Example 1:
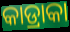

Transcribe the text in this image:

କାଡ୍ରାକା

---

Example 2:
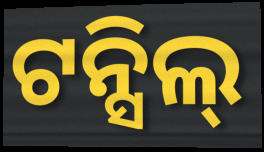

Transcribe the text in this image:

ଟନ୍ସିଲ୍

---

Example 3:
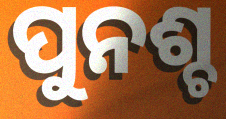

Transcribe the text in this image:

ପୁନଶ୍ଚ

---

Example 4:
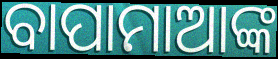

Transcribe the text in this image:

ବାପାମାଆଙ୍କ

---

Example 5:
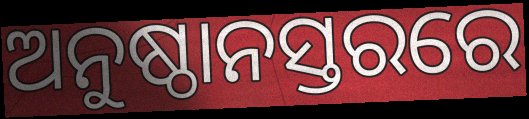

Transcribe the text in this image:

ଅନୁଷ୍ଠାନସ୍ତରରେ